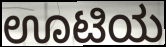
ಊಟಿಯ